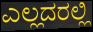
ಎಲ್ಲದರಲ್ಲಿ